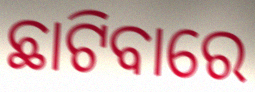
ଛାଟିବାରେ